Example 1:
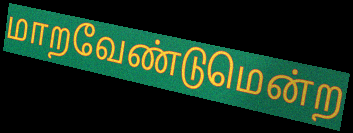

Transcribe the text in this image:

மாறவேண்டுமென்ற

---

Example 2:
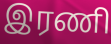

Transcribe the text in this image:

இரணி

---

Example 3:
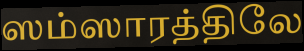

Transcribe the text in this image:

ஸம்ஸாரத்திலே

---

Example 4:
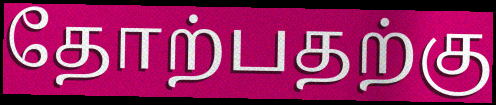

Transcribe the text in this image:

தோற்பதற்கு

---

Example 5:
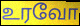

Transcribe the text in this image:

உரவோ